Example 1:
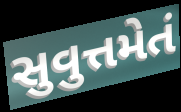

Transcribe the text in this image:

સુવુત્તમેતં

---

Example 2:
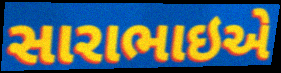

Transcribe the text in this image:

સારાભાઇએ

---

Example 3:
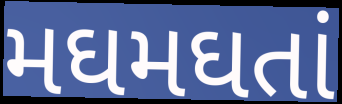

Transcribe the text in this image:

મઘમઘતાં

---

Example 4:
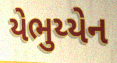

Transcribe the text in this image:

યેભુય્યેન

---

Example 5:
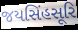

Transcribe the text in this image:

જયસિંહસૂરિ